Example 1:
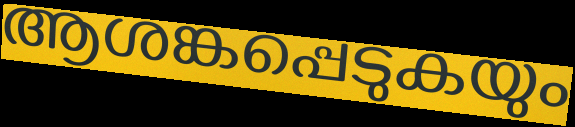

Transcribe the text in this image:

ആശങ്കപ്പെടുകയും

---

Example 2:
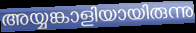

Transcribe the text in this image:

അയ്യങ്കാളിയായിരുന്നു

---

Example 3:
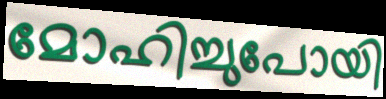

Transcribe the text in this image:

മോഹിച്ചുപോയി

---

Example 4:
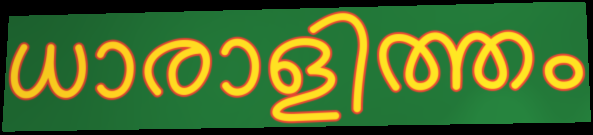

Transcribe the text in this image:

ധാരാളിത്തം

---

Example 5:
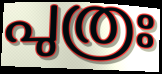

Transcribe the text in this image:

പുത്രഃ